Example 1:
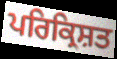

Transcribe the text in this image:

ਪਰਿਕ੍ਰਿਸ਼ਤ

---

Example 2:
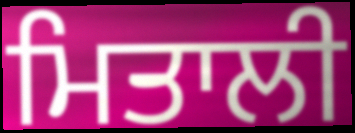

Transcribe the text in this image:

ਮਿਤਾਲੀ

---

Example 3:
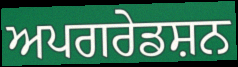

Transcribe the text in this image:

ਅਪਗਰੇਡਸ਼ਨ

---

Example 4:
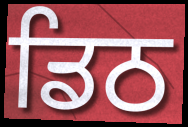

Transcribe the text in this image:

ਡਿਠ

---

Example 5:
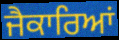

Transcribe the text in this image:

ਜੈਕਾਰਿਆਂ